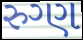
રુગ્ણ